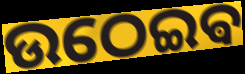
ଉଠେଇଵ